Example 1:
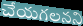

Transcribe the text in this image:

చేయగలనని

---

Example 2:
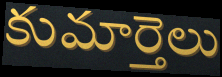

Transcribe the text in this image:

కుమార్తెలు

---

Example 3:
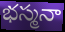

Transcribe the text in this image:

భస్మనా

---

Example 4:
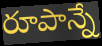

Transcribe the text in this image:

రూపాన్నే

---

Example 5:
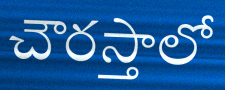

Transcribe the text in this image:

చౌరస్తాలో